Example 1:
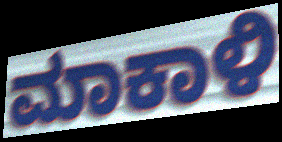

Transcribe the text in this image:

ಮಾಕಾಳಿ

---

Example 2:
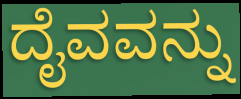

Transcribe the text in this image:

ದೈವವನ್ನು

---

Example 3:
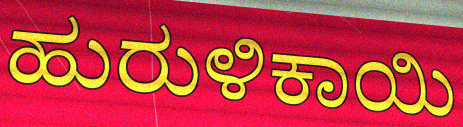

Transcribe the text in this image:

ಹುರುಳಿಕಾಯಿ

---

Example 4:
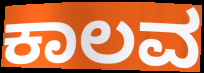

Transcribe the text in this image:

ಕಾಲವ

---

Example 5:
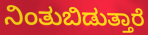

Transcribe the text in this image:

ನಿಂತುಬಿಡುತ್ತಾರೆ